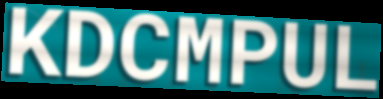
KDCMPUL